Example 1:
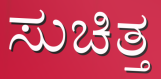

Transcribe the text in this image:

ಸುಚಿತ್ತ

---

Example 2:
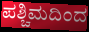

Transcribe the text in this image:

ಪಶ್ಚಿಮದಿಂದ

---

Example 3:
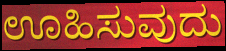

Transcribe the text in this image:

ಊಹಿಸುವುದು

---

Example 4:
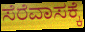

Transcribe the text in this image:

ಸೆರೆವಾಸಕ್ಕೆ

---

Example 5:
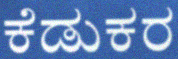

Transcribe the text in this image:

ಕೆಡುಕರ